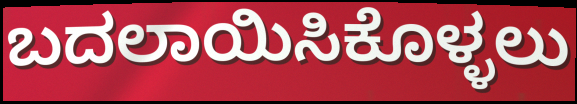
ಬದಲಾಯಿಸಿಕೊಳ್ಳಲು